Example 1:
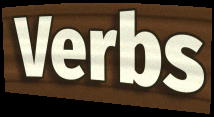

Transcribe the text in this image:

Verbs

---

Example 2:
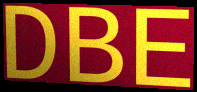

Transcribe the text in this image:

DBE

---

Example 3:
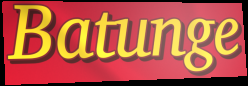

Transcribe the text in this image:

Batunge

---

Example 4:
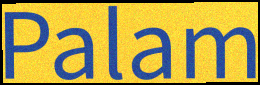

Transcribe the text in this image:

Palam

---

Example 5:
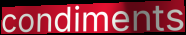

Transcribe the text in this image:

condiments